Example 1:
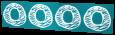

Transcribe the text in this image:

oooo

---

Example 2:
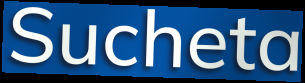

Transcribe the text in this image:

Sucheta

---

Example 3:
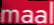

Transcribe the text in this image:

maal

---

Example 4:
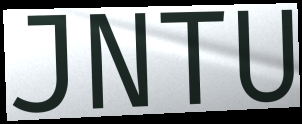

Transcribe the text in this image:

JNTU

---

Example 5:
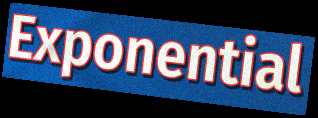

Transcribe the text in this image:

Exponential